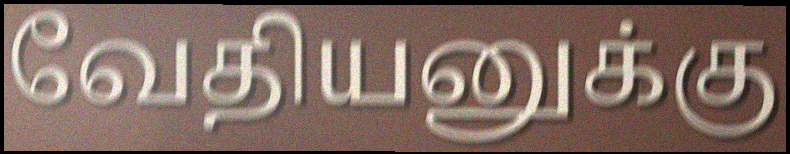
வேதியனுக்கு